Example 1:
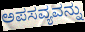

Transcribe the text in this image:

ಅಪಸವ್ಯವನ್ನು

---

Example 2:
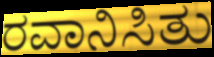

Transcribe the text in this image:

ರವಾನಿಸಿತು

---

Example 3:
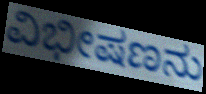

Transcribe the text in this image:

ವಿಭೀಷಣನು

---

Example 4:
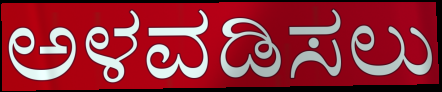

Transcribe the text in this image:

ಅಳವಡಿಸಲು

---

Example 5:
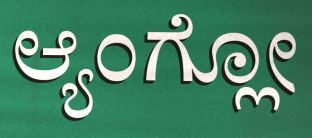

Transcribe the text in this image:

ಆ್ಯಂಗ್ಲೋ